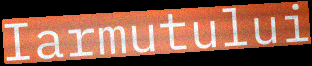
Iarmutului